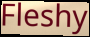
Fleshy